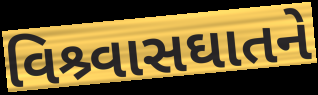
વિશ્ર્વાસઘાતને